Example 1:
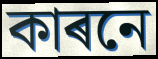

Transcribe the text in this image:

কাৰনে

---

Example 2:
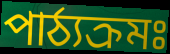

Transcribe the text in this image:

পাঠ্যক্ৰমঃ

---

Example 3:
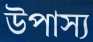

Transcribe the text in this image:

উপাস্য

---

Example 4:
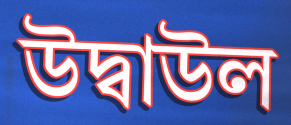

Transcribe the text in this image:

উদ্বাউল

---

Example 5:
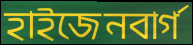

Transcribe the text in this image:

হাইজেনবাৰ্গ